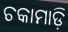
ଚକାମାଡ଼ି